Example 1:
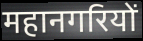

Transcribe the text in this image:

महानगरियों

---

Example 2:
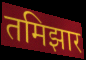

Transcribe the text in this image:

तमिझार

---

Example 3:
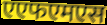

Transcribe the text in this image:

एएफएमएस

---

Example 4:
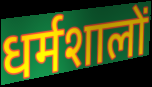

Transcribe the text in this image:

धर्मशालों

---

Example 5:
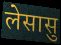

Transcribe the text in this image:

लेसासु